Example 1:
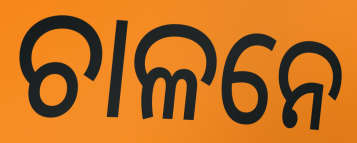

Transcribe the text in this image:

ଚାଳନେ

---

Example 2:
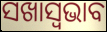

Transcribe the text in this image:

ସଖାସ୍ୱଭାବ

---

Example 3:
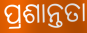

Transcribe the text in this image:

ପ୍ରଶାନ୍ତତା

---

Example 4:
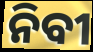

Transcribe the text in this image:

ନିବୀ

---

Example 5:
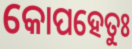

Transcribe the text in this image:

କୋପହେତୁଃ